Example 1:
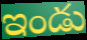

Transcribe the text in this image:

ఇండు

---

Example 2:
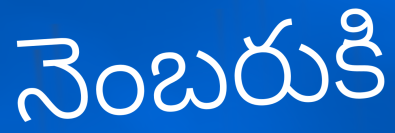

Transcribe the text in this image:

నెంబరుకి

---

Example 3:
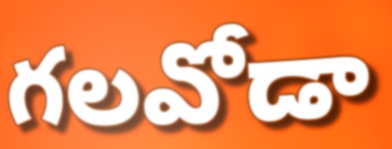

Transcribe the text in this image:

గలవోడా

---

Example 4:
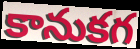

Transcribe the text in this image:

కానుకగ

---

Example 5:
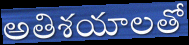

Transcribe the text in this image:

అతిశయాలతో